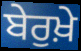
ਬੇਰੁਖ਼ੇ